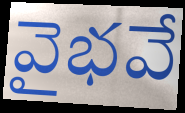
వైభవే